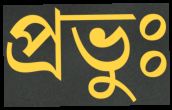
প্রভুঃ